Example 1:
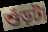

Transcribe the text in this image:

শুঁড়টা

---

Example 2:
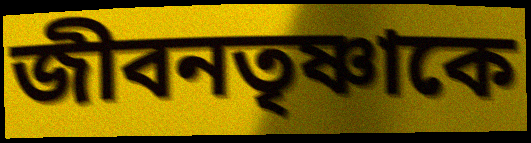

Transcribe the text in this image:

জীবনতৃষ্ণাকে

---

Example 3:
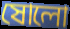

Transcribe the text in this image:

ষোলো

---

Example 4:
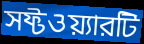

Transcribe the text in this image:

সফ্টওয়্যারটি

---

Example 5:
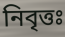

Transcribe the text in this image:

নিবৃত্তঃ